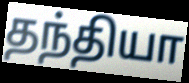
தந்தியா